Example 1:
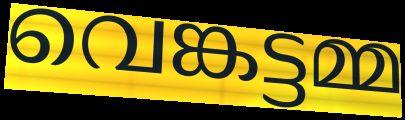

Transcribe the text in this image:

വെങ്കട്ടമ്മ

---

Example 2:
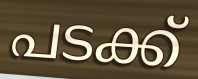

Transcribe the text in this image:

പടക്ക്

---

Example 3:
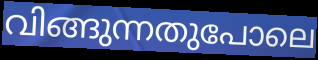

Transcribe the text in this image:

വിങ്ങുന്നതുപോലെ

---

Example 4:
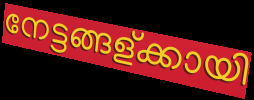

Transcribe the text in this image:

നേട്ടങ്ങള്ക്കായി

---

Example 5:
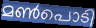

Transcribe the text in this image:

മൺപൊടി